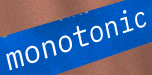
monotonic